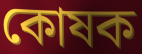
কোষক